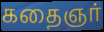
கதைஞர்